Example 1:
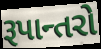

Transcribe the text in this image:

રૂપાન્તરો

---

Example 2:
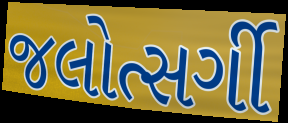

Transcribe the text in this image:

જલોત્સર્ગી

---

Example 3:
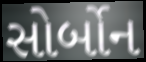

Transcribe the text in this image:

સોર્બોન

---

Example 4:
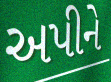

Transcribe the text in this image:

અપીને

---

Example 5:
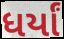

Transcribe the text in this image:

ધર્યાં